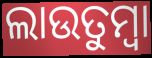
ଲାଉତୁମ୍ବା